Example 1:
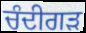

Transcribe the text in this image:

ਚੰਦੀਗੜ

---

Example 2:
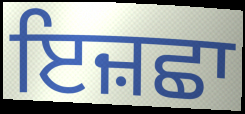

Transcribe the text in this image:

ਇਜ਼ਛਾ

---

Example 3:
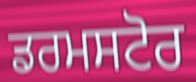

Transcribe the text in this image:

ਡਰਮਸਟੋਰ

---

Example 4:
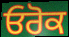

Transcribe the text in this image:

ਓਰੋਕ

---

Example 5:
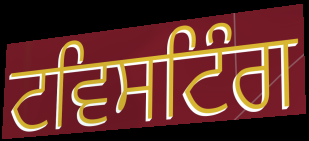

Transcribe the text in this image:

ਟਵਿਸਟਿੰਗ